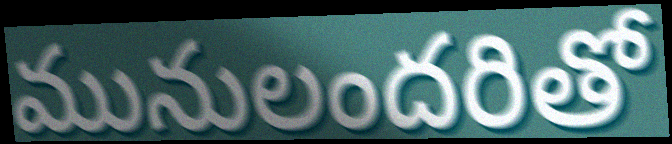
మునులందరితో